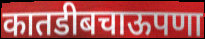
कातडीबचाऊपणा